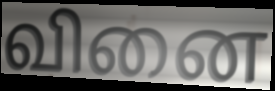
வினை